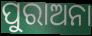
ପୁରାଅନା